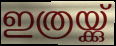
ഇത്രയ്ക്കു്